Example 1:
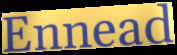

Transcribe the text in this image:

Ennead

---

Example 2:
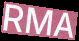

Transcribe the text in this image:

RMA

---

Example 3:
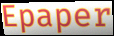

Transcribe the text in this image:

Epaper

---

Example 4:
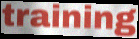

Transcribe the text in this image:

training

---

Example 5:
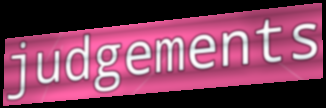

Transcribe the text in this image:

judgements